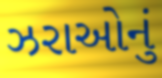
ઝરાઓનું